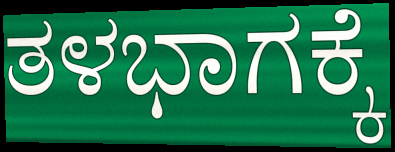
ತಳಭಾಗಕ್ಕೆ